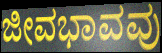
ಜೀವಭಾವವು